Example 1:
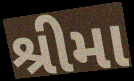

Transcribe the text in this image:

શ્રીમા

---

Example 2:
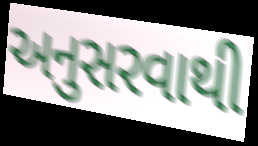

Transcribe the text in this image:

અનુસરવાથી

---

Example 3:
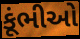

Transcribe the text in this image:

કૂંભીઓ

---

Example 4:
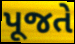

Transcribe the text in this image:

પૂજતે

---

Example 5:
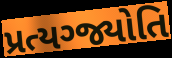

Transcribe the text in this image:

પ્રત્યગ્જ્યોતિ